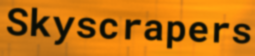
Skyscrapers